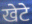
खेटे